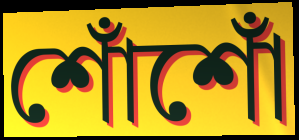
শোঁশোঁ